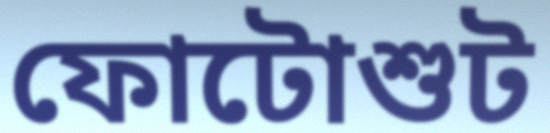
ফোটোশুট